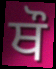
ਥੌ